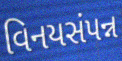
વિનયસંપન્ન